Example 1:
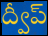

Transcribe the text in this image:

ద్వీప్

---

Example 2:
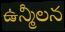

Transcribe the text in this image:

ఉన్మీలన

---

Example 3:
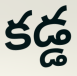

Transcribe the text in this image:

కడ్డ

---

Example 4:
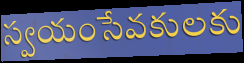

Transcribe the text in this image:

స్వయంసేవకులకు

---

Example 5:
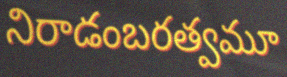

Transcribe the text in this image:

నిరాడంబరత్వమూ